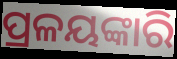
ପ୍ରଳୟଙ୍କାରି